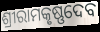
ଶ୍ରୀରାମକୃଷ୍ଣଦେବ